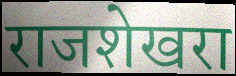
राजशेखरा